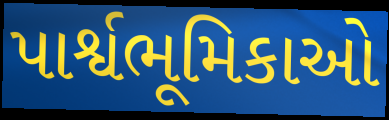
પાર્શ્વભૂમિકાઓ